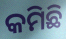
କମିଛି